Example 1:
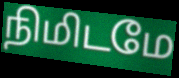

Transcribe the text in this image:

நிமிடமே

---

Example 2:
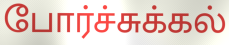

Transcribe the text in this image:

போர்ச்சுக்கல்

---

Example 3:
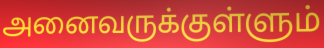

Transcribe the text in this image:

அனைவருக்குள்ளும்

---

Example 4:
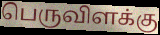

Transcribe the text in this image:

பெருவிளக்கு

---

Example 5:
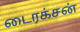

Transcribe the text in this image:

டைரக்சன்